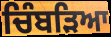
ਚਿੰਬੜਿਆ